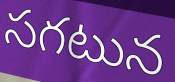
సగటున